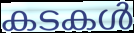
കടകൾ